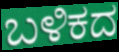
ಬಳಿಕದ